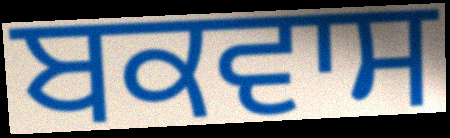
ਬਕਵਾਸ